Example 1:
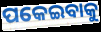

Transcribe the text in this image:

ପକେଇବାକୁ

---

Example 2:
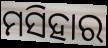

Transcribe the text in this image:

ମସିହାର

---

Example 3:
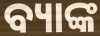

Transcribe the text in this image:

ବ୍ୟାଙ୍କ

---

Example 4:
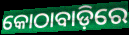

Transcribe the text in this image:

କୋଠାବାଡ଼ିରେ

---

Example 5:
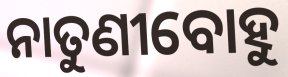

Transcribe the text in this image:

ନାତୁଣୀବୋହୁ